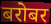
बरोबर